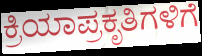
ಕ್ರಿಯಾಪ್ರಕೃತಿಗಳಿಗೆ